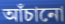
আঁচানো